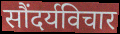
सौंदर्यविचार